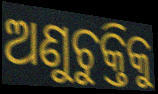
ଅଣୁଚୁକ୍ତିକୁ